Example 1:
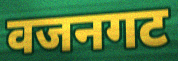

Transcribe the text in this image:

वजनगट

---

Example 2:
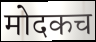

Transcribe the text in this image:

मोदकच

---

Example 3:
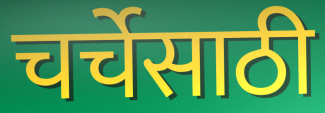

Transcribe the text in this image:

चर्चेसाठी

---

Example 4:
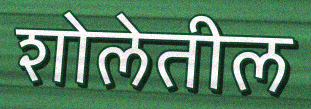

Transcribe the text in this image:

शोलेतील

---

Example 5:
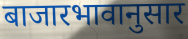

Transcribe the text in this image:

बाजारभावानुसार